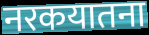
नरकयातना